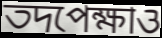
তদপেক্ষাও